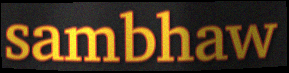
sambhaw